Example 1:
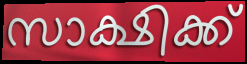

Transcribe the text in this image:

സാക്ഷിക്ക്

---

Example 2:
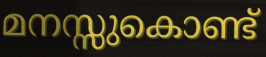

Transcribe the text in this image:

മനസ്സുകൊണ്ട്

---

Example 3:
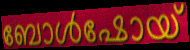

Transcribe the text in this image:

ബോൾഷോയ്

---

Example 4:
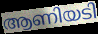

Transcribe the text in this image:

ആണിയടി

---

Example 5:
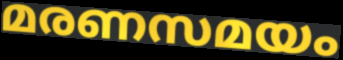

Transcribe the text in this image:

മരണസമയം